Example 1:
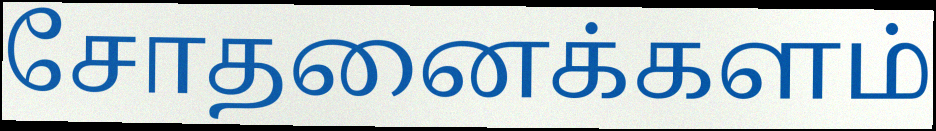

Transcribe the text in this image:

சோதனைக்களம்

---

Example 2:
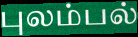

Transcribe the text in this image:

புலம்பல்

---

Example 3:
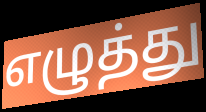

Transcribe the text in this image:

எழுத்து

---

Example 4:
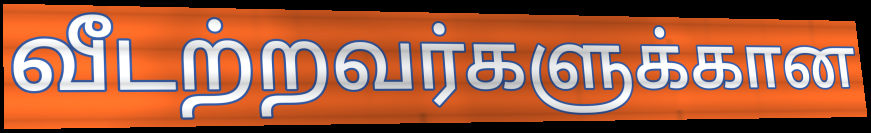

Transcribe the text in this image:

வீடற்றவர்களுக்கான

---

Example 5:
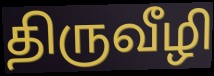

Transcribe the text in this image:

திருவீழி